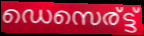
ഡെസെര്ട്ട്